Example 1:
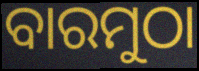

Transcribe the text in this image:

ବାରମୁଠା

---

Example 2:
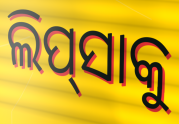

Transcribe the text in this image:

ଲିପ୍‍ସାକୁ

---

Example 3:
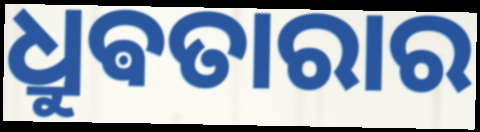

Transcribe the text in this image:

ଧ୍ରୁଵତାରାର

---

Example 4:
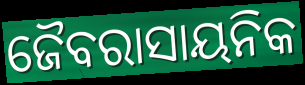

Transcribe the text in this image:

ଜୈବରାସାୟନିକ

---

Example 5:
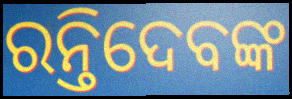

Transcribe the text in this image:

ରନ୍ତିଦେବଙ୍କ